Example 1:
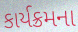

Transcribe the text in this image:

કાર્યક્રમના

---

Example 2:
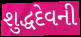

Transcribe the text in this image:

શુદ્ધદેવની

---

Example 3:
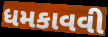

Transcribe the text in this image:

ધમકાવવી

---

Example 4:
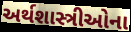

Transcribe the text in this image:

અર્થશાસ્ત્રીઓના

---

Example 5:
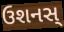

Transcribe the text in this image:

ઉશનસ્